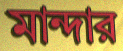
মান্দার